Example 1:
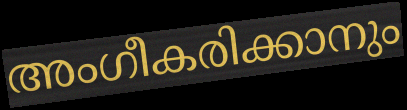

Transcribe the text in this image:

അംഗീകരിക്കാനും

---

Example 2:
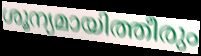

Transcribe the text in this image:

ശൂന്യമായിത്തീരും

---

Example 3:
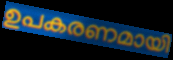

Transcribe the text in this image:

ഉപകരണമായി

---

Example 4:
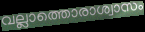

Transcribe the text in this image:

വല്ലാത്തൊരാശ്വാസം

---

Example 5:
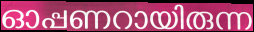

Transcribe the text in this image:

ഓപ്പണറായിരുന്ന